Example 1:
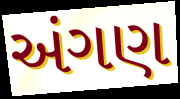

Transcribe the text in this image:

અંગણ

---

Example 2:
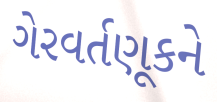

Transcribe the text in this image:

ગેરવર્તણૂકને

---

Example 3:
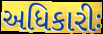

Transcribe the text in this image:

અધિકારીઃ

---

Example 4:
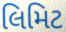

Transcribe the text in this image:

લિમિટ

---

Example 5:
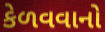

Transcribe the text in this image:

કેળવવાનો